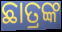
ଛାତ୍ରଙ୍କ